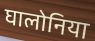
घालोनिया